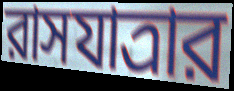
রাসযাত্রার